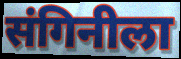
संगिनीला